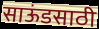
साऊंडसाठी